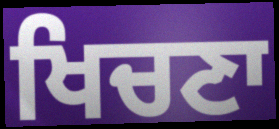
ਖਿਚਣਾ